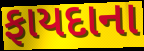
ફાયદાના